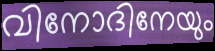
വിനോദിനേയും